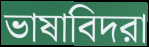
ভাষাবিদরা